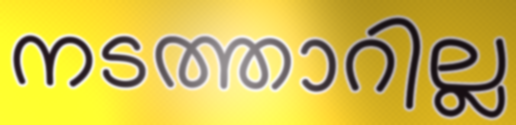
നടത്താറില്ല